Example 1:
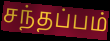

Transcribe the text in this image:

சந்தப்பம்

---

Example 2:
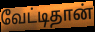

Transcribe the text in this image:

வேட்டிதான்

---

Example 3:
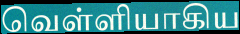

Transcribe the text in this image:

வெள்ளியாகிய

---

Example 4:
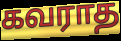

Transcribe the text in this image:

கவராத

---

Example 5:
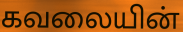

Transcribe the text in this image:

கவலையின்